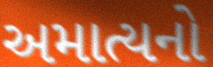
અમાત્યનો